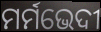
ମର୍ମଭେଦୀ